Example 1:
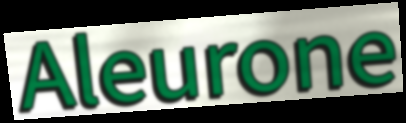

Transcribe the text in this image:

Aleurone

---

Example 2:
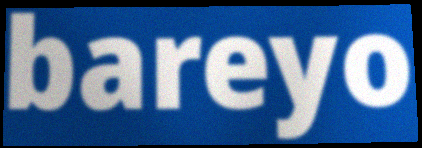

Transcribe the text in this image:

bareyo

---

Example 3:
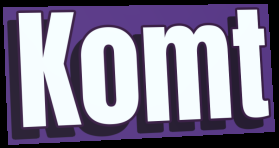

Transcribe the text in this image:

Komt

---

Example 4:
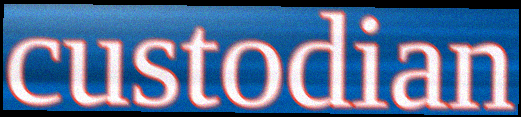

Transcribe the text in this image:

custodian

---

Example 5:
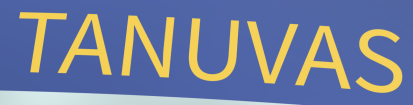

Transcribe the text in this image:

TANUVAS